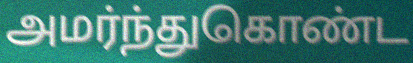
அமர்ந்துகொண்ட